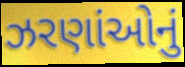
ઝરણાંઓનું